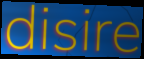
disire